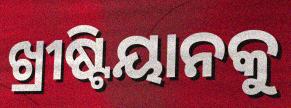
ଖ୍ରୀଷ୍ଟିୟାନକୁ